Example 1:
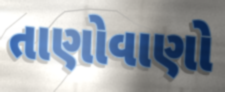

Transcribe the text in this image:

તાણોવાણો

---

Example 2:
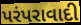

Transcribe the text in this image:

પરંપરાવાદી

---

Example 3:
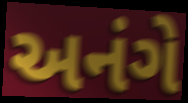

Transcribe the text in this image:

અનંગે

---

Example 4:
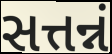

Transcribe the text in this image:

સત્તન્નં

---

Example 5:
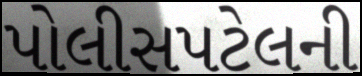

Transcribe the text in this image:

પોલીસપટેલની